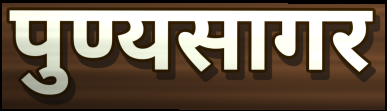
पुण्यसागर